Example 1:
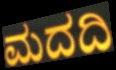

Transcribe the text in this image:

ಮದದಿ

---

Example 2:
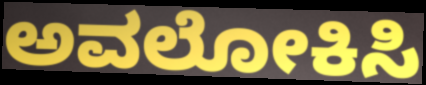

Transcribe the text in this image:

ಅವಲೋಕಿಸಿ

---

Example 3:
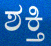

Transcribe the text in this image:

ಶಕ್ತಿ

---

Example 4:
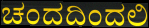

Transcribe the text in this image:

ಚಂದದಿಂದಲಿ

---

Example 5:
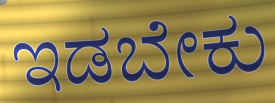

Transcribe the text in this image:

ಇಡಬೇಕು